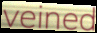
veined